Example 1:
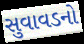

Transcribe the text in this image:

સુવાવડનો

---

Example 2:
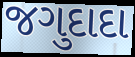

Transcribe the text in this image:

જગુદાદા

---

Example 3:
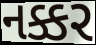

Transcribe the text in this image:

નક્કર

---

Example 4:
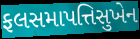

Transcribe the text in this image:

ફલસમાપત્તિસુખેન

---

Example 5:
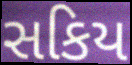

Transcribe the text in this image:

સકિય